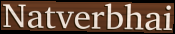
Natverbhai